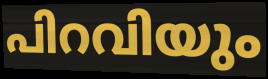
പിറവിയും